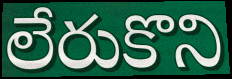
లేరుకొని